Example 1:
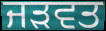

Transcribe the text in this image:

ਜੜਵਤ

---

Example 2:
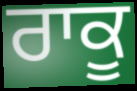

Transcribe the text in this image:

ਰਾਕੂ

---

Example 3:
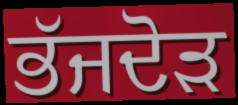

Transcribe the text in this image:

ਭੱਜਦੋੜ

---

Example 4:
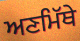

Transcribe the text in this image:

ਅਣਮਿੱਥੇ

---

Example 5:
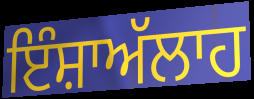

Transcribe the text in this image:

ਇੰਸ਼ਾਅੱਲਾਹ